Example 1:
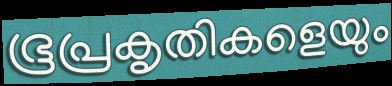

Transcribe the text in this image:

ഭൂപ്രകൃതികളെയും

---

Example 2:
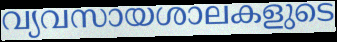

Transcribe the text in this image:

വ്യവസായശാലകളുടെ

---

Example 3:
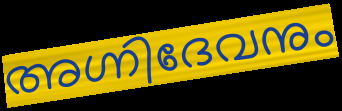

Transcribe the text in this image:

അഗ്നിദേവനും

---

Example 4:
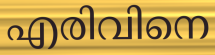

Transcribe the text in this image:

എരിവിനെ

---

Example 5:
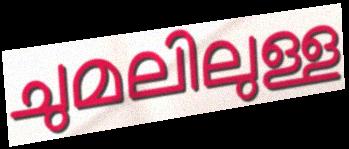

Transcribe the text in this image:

ചുമലിലുള്ള